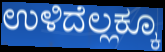
ಉಳಿದೆಲ್ಲಕ್ಕೂ